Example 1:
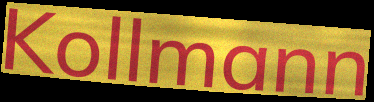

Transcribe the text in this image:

Kollmann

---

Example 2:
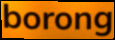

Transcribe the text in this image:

borong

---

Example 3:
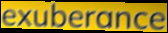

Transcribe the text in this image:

exuberance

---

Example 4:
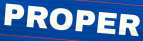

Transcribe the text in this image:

PROPER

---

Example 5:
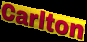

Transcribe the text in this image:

Carlton